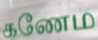
கணேம